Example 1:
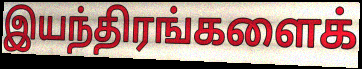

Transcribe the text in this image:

இயந்திரங்களைக்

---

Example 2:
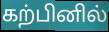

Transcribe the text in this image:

கற்பினில்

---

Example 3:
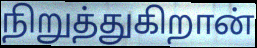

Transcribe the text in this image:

நிறுத்துகிறான்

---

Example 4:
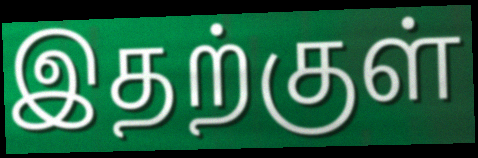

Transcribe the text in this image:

இதற்குள்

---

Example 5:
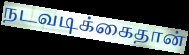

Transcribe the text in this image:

நடவடிக்கைதான்